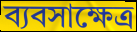
ব্যবসাক্ষেত্র